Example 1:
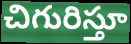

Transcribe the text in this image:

చిగురిస్తూ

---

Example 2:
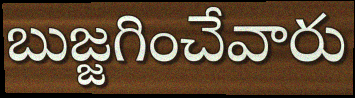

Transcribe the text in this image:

బుజ్జగించేవారు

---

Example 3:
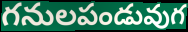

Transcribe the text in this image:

గనులపండువుగ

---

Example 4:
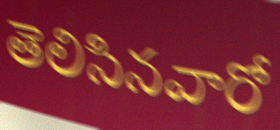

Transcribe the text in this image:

తెలిసినవారో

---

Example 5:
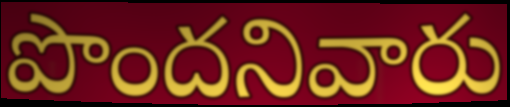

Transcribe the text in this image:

పొందనివారు